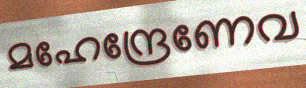
മഹേന്ദ്രേണേവ